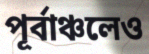
পূর্বাঞ্চলেও